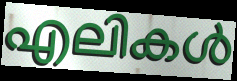
എലികൾ